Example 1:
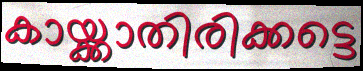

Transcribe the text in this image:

കായ്ക്കാതിരിക്കട്ടെ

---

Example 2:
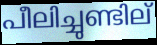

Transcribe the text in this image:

പീലിച്ചുണ്ടില്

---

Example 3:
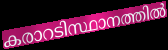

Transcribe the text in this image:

കരാറടിസ്ഥാനത്തിൽ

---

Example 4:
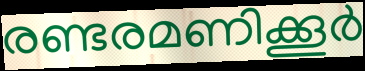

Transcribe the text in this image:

രണ്ടരമണിക്കൂർ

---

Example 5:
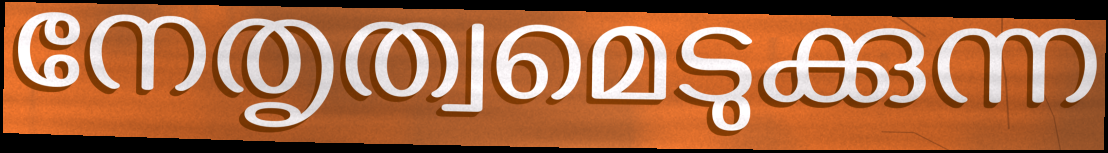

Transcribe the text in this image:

നേതൃത്വമെടുക്കുന്ന